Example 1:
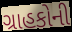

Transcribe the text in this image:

ગ્રાહકોની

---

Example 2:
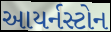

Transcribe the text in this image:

આયર્નસ્ટોન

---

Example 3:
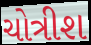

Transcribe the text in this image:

ચોત્રીશ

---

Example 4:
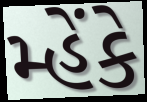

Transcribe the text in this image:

મ્હેંકે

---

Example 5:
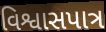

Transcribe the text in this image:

વિશ્વાસપાત્ર